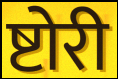
ष्टोरी